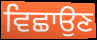
ਵਿਛਾਉਣ